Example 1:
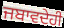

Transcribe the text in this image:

ਜਬਾਵਦੇਹੀ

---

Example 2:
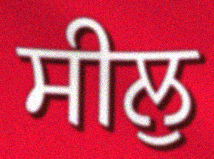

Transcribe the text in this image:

ਸੀਲੁ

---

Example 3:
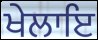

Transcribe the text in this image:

ਖੇਲਾਇ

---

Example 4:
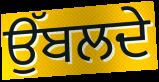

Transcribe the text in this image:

ਉੱਬਲਦੇ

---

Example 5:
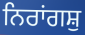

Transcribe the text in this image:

ਨਿਰਾਂਗਸ਼ੁ